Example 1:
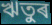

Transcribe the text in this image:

ঋতুৰ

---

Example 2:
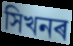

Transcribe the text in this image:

সিখনৰ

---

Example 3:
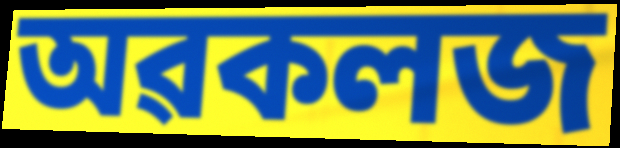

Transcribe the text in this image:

অৱকলজ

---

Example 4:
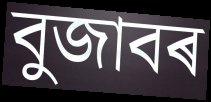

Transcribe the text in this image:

বুজাবৰ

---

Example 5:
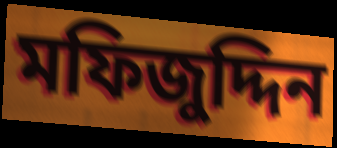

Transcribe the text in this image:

মফিজুদ্দিন